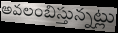
అవలంబిస్తున్నట్లు